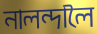
নালন্দালৈ